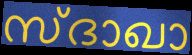
സ്ദാഖാ